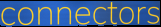
connectors